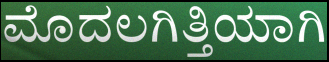
ಮೊದಲಗಿತ್ತಿಯಾಗಿ